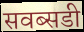
सवब्सडी